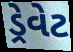
ડ્રેવેટ